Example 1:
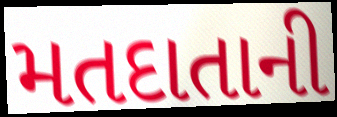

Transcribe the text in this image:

મતદાતાની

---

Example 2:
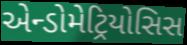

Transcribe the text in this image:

એન્ડોમેટ્રિયોસિસ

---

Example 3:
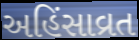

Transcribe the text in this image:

અહિંસાવ્રત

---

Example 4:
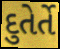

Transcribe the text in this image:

દુતેર્તે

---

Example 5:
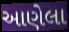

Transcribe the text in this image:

આણેલા